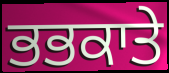
ਭਭਕਾਤੇ